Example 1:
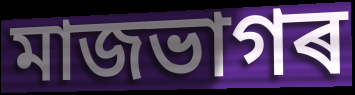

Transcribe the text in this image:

মাজভাগৰ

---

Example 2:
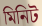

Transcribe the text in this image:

মিনিট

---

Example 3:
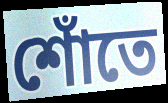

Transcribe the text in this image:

শোঁতে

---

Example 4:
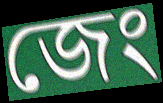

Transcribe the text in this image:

জেং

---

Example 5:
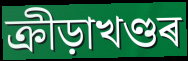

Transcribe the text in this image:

ক্ৰীড়াখণ্ডৰ